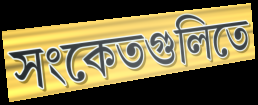
সংকেতগুলিতে